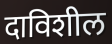
दाविशील